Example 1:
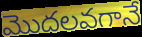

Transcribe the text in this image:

మొదలవగానే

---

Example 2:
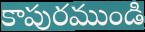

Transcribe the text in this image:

కాపురముండి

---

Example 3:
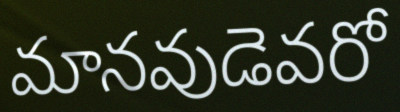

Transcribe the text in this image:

మానవుడెవరో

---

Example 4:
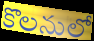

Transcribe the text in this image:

కొలనులో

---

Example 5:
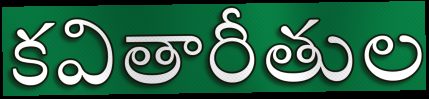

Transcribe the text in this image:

కవితారీతుల